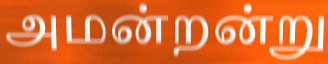
அமன்றன்று